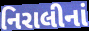
નિરાલીનાં